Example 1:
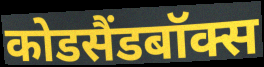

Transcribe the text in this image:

कोडसैंडबॉक्स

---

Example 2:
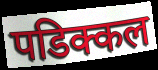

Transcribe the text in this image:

पडिक्कल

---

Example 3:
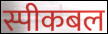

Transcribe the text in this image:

स्पीकबल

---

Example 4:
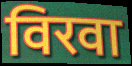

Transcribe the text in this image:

विरवा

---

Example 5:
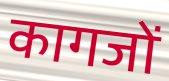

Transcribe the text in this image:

कागजों